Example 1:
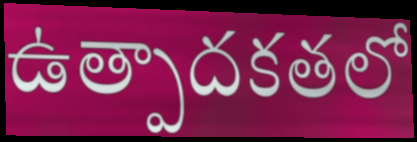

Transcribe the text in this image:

ఉత్పాదకతలో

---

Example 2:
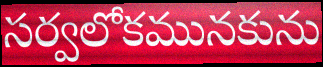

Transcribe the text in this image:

సర్వలోకమునకును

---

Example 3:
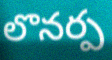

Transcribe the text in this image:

లొనర్ప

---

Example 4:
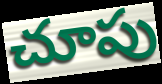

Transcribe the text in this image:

చూపు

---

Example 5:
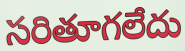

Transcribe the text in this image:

సరితూగలేదు